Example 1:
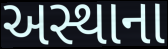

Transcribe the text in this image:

અસ્થાના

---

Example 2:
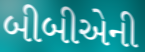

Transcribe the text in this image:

બીબીએની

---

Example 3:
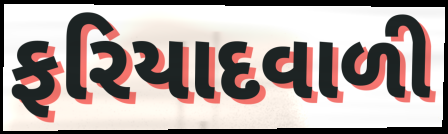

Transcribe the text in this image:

ફરિયાદવાળી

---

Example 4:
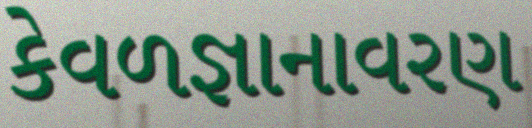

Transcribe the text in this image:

કેવળજ્ઞાનાવરણ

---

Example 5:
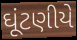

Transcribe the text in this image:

ઘૂંટણીયે